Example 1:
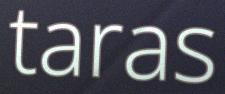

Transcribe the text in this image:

taras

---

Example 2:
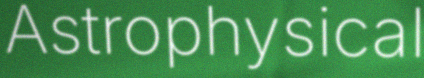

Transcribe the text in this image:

Astrophysical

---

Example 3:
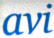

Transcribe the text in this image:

avi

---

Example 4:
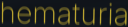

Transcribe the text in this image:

hematuria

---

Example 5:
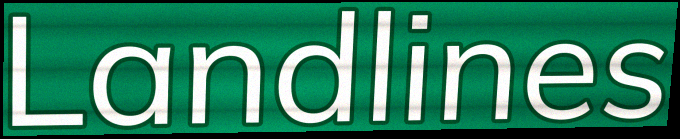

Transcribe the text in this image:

Landlines